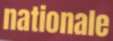
nationale